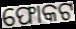
ଫୋକଟ